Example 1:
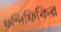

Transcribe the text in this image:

ফন্দিফিকির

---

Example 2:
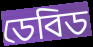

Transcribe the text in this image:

ডেবিড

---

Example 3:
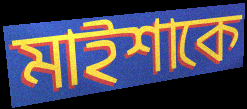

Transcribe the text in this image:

মাইশাকে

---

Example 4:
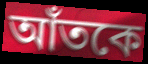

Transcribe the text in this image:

আঁতকে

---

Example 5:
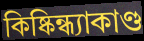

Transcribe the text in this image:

কিষ্কিন্ধ্যাকাণ্ড